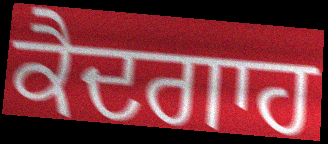
ਕੈਦਗਾਹ